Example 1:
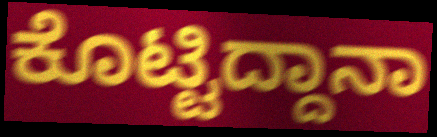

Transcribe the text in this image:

ಕೊಟ್ಟಿದ್ದಾನಾ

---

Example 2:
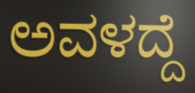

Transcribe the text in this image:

ಅವಳದ್ದೆ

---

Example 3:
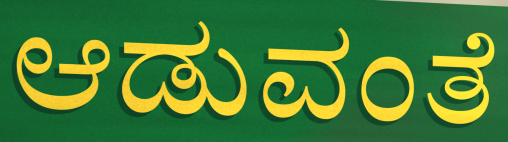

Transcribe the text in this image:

ಆಡುವಂತೆ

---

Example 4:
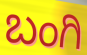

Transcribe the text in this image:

ಬಂಗಿ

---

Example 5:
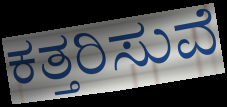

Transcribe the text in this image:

ಕತ್ತರಿಸುವೆ